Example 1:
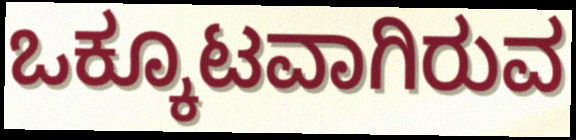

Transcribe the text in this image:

ಒಕ್ಕೂಟವಾಗಿರುವ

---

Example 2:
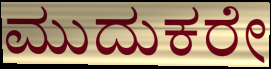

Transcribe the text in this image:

ಮುದುಕರೇ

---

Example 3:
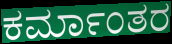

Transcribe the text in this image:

ಕರ್ಮಾಂತರ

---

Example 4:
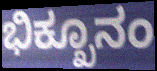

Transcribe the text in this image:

ಭಿಕ್ಖೂನಂ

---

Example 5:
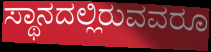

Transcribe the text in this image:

ಸ್ಥಾನದಲ್ಲಿರುವವರೂ